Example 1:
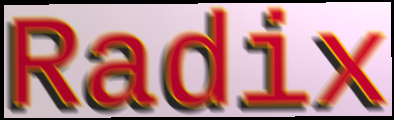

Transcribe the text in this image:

Radix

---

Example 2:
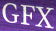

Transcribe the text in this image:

GFX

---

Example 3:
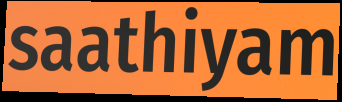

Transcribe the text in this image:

saathiyam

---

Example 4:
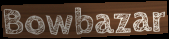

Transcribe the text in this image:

Bowbazar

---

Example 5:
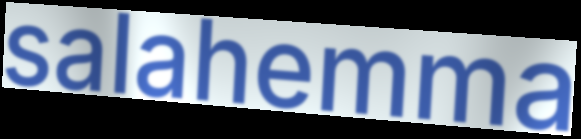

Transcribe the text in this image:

salahemma